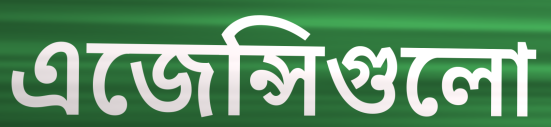
এজেন্সিগুলো